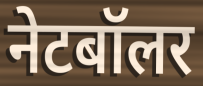
नेटबॉलर